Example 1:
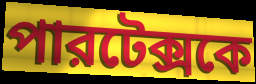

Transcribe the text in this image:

পারটেক্সকে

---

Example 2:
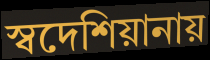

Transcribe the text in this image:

স্বদেশিয়ানায়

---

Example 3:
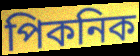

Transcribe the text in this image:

পিকনিক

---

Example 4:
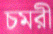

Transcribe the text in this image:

চমরী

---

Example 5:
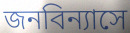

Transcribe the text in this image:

জনবিন্যাসে